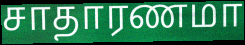
சாதாரணமா